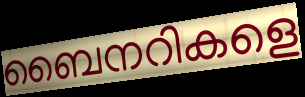
ബൈനറികളെ